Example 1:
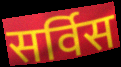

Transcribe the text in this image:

सर्विस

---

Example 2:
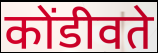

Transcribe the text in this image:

कोंडीवते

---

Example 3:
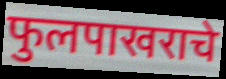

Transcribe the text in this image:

फुलपाखराचे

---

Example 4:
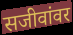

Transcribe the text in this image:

सजीवांवर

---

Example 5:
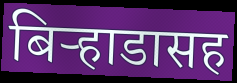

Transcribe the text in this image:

बिऱ्हाडासह